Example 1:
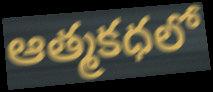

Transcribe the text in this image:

ఆత్మకధలో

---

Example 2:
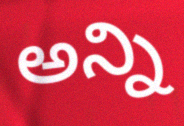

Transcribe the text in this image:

అన్ని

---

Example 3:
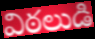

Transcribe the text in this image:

విఠలుడి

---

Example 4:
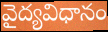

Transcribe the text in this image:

వైద్యవిధానం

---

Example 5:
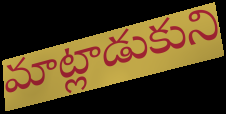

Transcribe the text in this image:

మాట్లాడుకుని